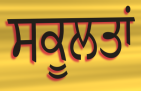
ਸਕੂਲਤਾਂ